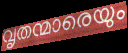
വൃതന്മാരെയും